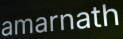
amarnath